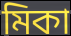
মিকা